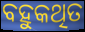
ବହୁକଥିତ